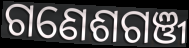
ଗଣେଶଗଞ୍ଜ